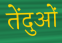
तेंदुओं